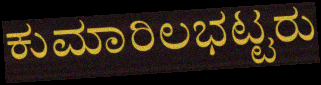
ಕುಮಾರಿಲಭಟ್ಟರು